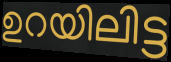
ഉറയിലിട്ട